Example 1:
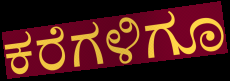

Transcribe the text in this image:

ಕರೆಗಳಿಗೂ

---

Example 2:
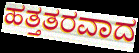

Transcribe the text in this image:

ಹತ್ತತರವಾದ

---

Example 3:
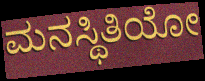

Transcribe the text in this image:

ಮನಸ್ಥಿತಿಯೋ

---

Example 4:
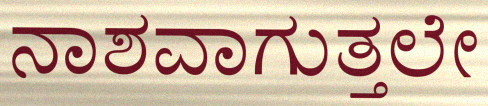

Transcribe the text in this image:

ನಾಶವಾಗುತ್ತಲೇ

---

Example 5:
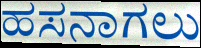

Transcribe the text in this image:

ಹಸನಾಗಲು